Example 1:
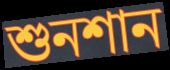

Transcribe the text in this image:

শুনশান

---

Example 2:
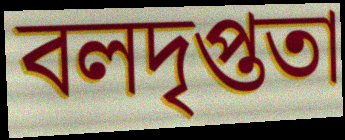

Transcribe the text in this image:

বলদৃপ্ততা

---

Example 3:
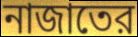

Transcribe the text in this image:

নাজাতের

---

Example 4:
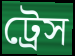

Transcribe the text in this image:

ট্রেস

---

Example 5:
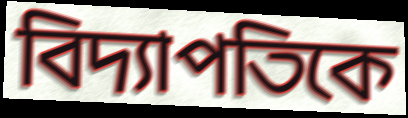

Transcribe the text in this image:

বিদ্যাপতিকে